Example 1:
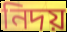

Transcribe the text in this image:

নিদয়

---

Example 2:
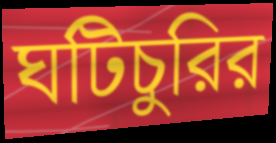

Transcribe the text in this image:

ঘটিচুরির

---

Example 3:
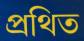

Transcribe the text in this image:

প্রথিত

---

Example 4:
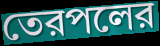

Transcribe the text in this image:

তেরপলের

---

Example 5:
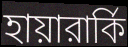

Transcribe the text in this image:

হায়ারার্কি